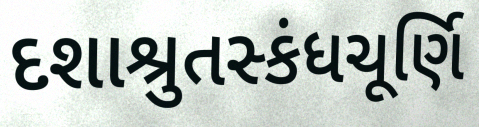
દશાશ્રુતસ્કંધચૂર્ણિ